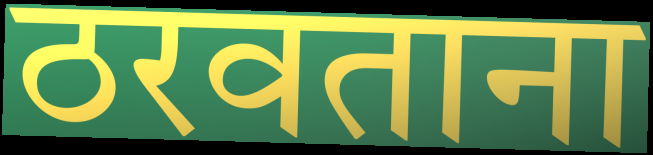
ठरवताना